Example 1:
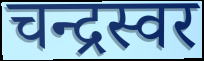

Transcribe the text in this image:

चन्द्रस्वर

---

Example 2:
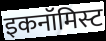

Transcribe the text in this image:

इकनॉमिस्‍ट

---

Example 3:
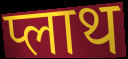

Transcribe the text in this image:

प्लाथ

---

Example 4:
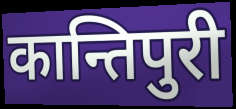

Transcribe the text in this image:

कान्तिपुरी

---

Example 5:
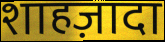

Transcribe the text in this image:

शाहज़ादा